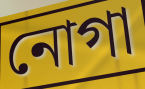
নোগা